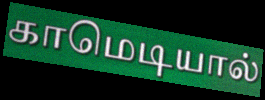
காமெடியால்